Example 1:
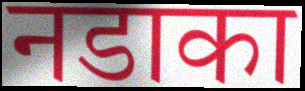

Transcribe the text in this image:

नडाका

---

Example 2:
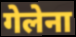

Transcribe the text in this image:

गेलेना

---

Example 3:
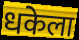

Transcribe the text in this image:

धकेला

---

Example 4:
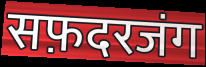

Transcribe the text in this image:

सफ़दरजंग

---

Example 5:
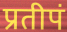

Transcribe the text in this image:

प्रतीपं